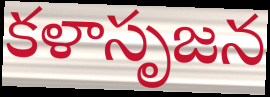
కళాసృజన